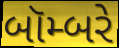
બૉમ્બરે